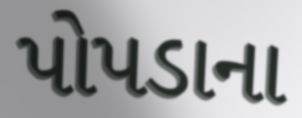
પોપડાના